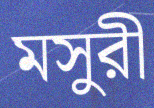
মসুরী